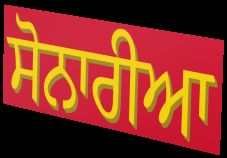
ਸੋਨਾਰੀਆ